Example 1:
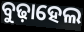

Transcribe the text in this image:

ବୁଢ଼ାହେଲ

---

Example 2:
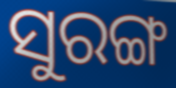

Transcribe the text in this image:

ସୁରଙ୍ଗ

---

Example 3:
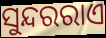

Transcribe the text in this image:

ସୁନ୍ଦରରାଏ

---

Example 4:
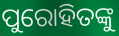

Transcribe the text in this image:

ପୁରୋହିତଙ୍କୁ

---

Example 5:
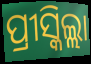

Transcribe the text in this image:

ପ୍ରୀସ୍କିଲ୍ଲା